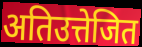
अतिउत्तेजित